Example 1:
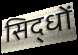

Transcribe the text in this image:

सिद्धों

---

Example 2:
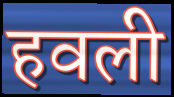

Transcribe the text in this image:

हवली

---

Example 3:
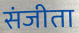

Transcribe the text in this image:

संजीता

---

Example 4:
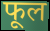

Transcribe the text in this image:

फूल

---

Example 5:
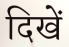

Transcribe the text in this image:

दिखें